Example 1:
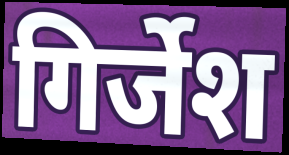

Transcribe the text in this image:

गिर्जेश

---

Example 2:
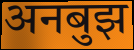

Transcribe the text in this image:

अनबुझ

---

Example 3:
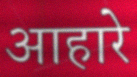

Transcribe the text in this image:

आहारे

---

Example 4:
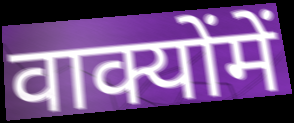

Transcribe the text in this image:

वाक्योंमें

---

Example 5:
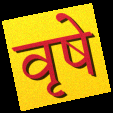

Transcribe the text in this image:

वृषे